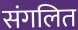
संगलित